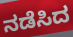
ನಡೆಸಿದ